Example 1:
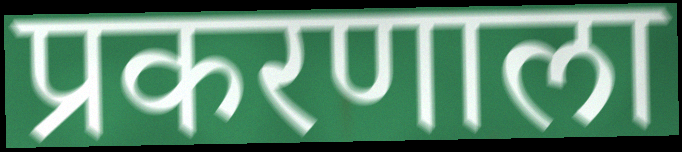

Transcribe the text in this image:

प्रकरणाला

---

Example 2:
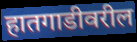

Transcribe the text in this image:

हातगाडीवरील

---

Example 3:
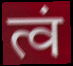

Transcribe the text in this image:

त्वं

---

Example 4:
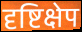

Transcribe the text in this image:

दृष्टिक्षेप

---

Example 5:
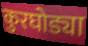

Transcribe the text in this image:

कुरघोड्या